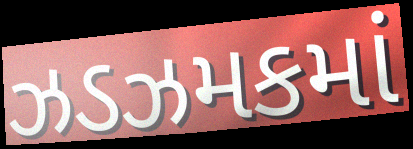
ઝડઝમકમાં